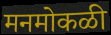
मनमोकळी